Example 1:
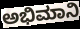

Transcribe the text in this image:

ಅಭಿಮಾನಿ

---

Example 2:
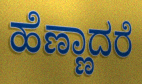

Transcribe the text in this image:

ಹೆಣ್ಣಾದರೆ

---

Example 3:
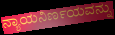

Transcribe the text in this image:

ನ್ಯಾಯನಿರ್ಣಯವನ್ನು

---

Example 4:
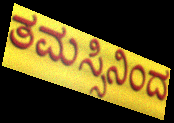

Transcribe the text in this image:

ತಮಸ್ಸಿನಿಂದ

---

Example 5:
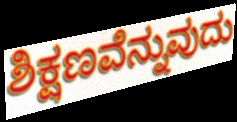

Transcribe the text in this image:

ಶಿಕ್ಷಣವೆನ್ನುವುದು